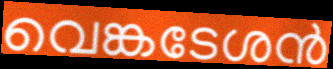
വെങ്കടേശൻ